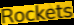
Rockets